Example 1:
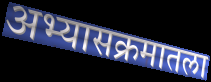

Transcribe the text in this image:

अभ्यासक्रमातला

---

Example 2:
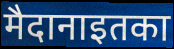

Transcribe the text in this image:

मैदानाइतका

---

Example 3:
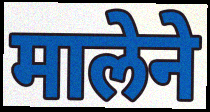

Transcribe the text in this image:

मालेने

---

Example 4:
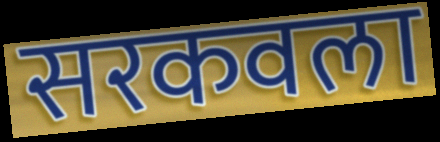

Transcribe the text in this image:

सरकवला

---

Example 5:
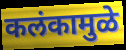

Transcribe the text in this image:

कलंकामुळे